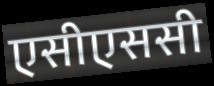
एसीएससी